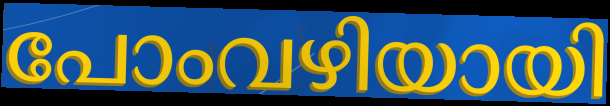
പോംവഴിയായി